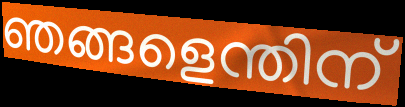
ഞങ്ങളെന്തിന്